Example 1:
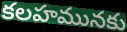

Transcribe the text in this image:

కలహమునకు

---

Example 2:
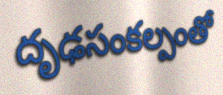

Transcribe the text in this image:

దృఢసంకల్పంతో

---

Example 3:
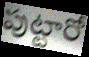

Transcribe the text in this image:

పుట్టారో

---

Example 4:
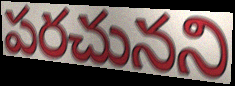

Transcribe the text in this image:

పరచునని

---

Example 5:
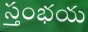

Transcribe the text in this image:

స్తంభయ